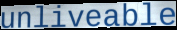
unliveable